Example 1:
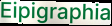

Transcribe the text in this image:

Eipigraphia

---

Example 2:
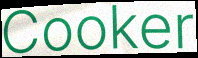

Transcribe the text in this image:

Cooker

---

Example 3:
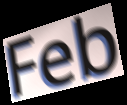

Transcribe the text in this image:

Feb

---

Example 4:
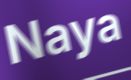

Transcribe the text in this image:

Naya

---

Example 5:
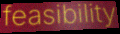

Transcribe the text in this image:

feasibility